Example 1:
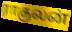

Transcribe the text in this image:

ராகுலன்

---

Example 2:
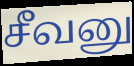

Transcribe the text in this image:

சீவனு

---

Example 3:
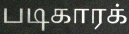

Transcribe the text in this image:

படிகாரக்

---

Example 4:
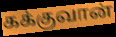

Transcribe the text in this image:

கக்குவான்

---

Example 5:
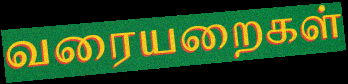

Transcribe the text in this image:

வரையறைகள்